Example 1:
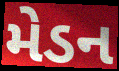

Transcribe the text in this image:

મેડન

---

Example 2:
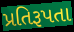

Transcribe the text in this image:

પ્રતિરૂપતા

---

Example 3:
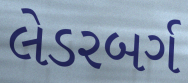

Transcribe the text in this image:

લેડરબર્ગ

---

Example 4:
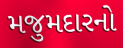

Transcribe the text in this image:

મજુમદારનો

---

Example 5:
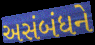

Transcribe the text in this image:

અસંબંધને